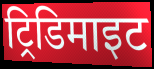
ट्रिडिमाइट